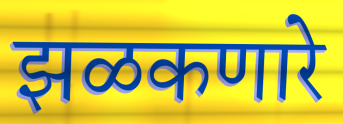
झळकणारे